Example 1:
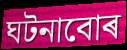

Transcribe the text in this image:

ঘটনাবোৰ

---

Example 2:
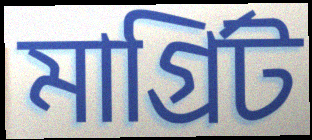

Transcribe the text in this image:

মাৰ্গ্ৰিট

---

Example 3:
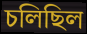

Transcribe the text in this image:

চলিছিল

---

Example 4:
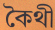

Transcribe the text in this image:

কৈথী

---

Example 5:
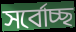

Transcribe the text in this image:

সৰ্বোচ্ছ